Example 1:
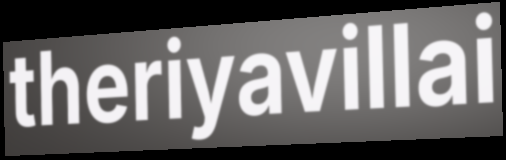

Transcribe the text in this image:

theriyavillai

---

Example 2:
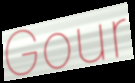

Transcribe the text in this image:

Gour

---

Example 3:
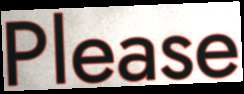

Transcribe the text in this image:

Please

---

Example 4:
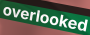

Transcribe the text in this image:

overlooked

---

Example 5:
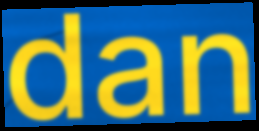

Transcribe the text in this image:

dan